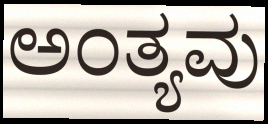
ಅಂತ್ಯವು